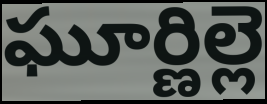
ఘూర్ణిల్లె